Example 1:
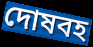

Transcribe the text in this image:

দোষবহ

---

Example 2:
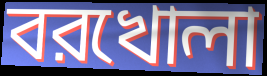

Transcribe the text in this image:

বরখোলা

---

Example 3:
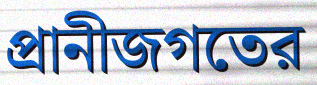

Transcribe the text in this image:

প্রানীজগতের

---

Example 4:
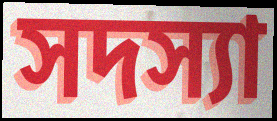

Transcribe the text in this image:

সদস্যা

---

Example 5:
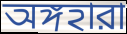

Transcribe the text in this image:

অঙ্গহারা